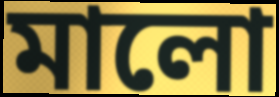
মালো